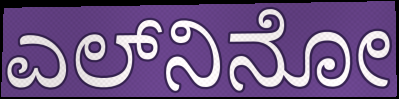
ಎಲ್‍ನಿನೋ